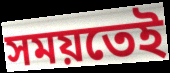
সময়তেই